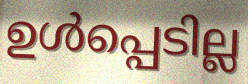
ഉൾപ്പെടില്ല